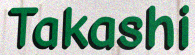
Takashi